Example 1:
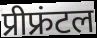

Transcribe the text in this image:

प्रीफ्रंटल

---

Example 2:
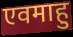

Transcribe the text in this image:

एवमाहु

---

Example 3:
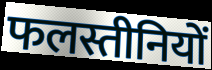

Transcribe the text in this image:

फलस्तीनियों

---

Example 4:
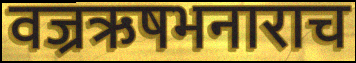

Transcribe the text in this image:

वज्रऋषभनाराच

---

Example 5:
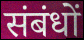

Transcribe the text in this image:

संबंधों